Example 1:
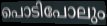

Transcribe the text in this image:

പൊടിപോലും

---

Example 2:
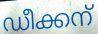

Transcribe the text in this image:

ഡീക്കന്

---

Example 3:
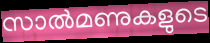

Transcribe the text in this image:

സാൽമണുകളുടെ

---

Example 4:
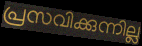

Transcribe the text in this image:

പ്രസവിക്കുന്നില്ല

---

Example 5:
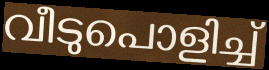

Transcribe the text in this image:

വീടുപൊളിച്ച്